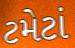
ટમેટાં